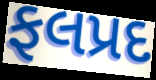
ફલપ્રદ